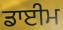
ਡਾਈਮ